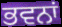
ਭਵਨਾਂ